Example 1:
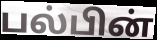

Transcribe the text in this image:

பல்பின்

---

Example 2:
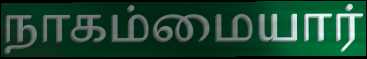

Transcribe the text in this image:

நாகம்மையார்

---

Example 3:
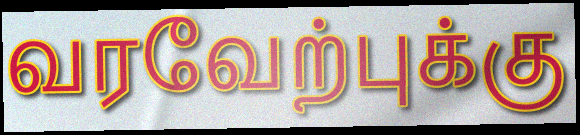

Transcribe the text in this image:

வரவேற்புக்கு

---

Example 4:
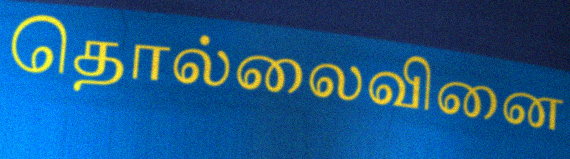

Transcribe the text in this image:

தொல்லைவினை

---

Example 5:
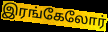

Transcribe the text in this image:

இரங்கேலோர்